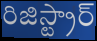
రిజిస్ట్రార్